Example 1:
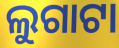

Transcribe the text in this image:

ଲୁଗାଟା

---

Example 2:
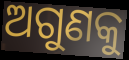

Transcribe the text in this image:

ଅଗୁଣକୁ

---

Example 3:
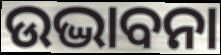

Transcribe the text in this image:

ଉଦ୍ଭାବନା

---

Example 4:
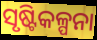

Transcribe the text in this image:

ସୃଷ୍ଟିକଳ୍ପନା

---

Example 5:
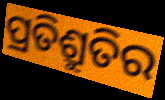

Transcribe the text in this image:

ପ୍ରତିଶ୍ରୁତିର